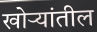
खोऱ्यांतील